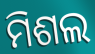
ମିଶଲ